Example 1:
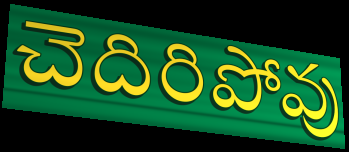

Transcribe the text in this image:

చెదిరిపోవు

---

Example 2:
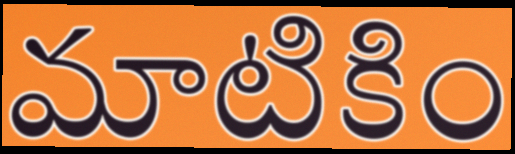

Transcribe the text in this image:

మాటికిం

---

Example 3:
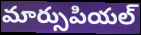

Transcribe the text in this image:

మార్సుపియల్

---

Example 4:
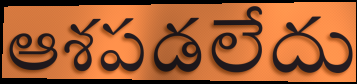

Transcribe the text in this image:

ఆశపడలేదు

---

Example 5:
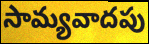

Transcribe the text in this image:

సామ్యవాదపు